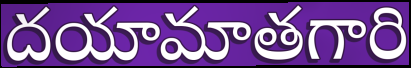
దయామాతగారి